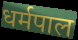
धर्मपाल